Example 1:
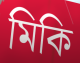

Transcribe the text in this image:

মিকি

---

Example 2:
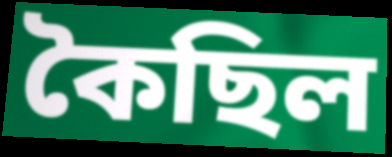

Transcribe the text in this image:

কৈছিল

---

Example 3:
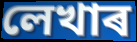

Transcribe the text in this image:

লেখাৰ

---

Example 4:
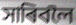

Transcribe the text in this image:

সাৰিবলৈ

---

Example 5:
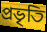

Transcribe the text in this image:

প্ৰভৃতি